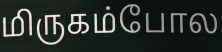
மிருகம்போல